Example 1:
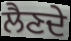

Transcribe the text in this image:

ਲੈਣਦੇ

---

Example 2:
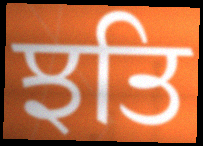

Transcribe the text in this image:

ਝਤਿ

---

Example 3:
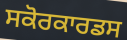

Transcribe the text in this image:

ਸਕੋਰਕਾਰਡਸ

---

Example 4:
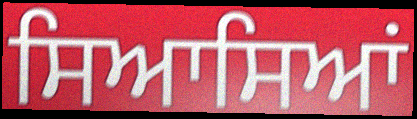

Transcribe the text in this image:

ਸਿਆਸਿਆਂ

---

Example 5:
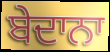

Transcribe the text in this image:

ਬੇਦਾਨਾ